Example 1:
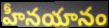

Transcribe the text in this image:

హీనయానం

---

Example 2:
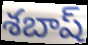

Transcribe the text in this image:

శబాష్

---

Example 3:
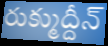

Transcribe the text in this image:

రుక్ముద్దీన్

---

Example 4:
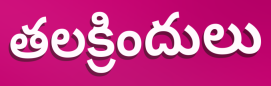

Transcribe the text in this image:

తలక్రిందులు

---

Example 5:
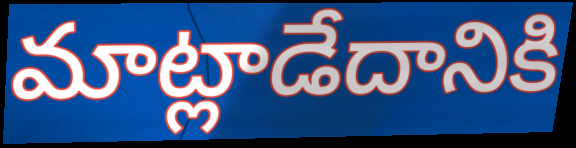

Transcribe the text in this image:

మాట్లాడేదానికి